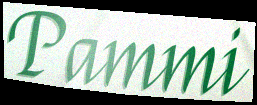
Pammi